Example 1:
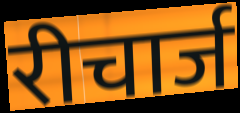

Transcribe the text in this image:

रीचार्ज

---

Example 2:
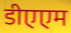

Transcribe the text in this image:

डीएएम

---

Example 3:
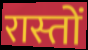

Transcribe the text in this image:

रास्‍तों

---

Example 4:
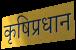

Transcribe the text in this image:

कृषिप्रधान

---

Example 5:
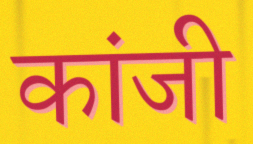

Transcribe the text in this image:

कांजी